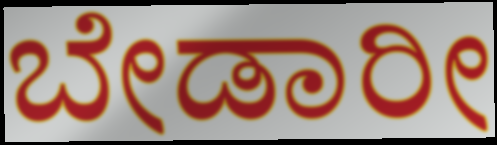
ಬೇಡಾರೀ